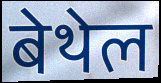
बेथेल